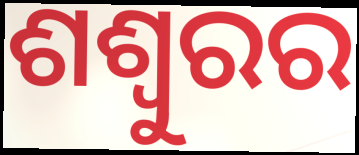
ଶଶ୍ୱୁରର